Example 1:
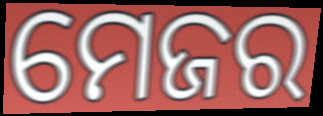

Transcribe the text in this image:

ମେଜର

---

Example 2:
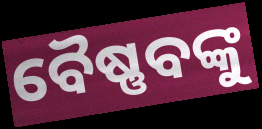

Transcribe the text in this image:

ବୈଷ୍ଣବଙ୍କୁ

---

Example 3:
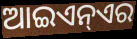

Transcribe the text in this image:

ଆଇଏନ୍ଏର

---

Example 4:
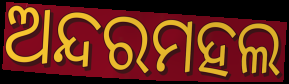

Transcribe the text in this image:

ଅନ୍ଦରମହଲ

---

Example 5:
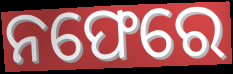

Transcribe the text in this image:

ନଫେରେ